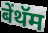
बेंथॅम